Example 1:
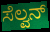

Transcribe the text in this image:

ಸೆಲ್ವನ್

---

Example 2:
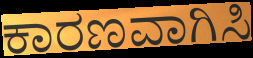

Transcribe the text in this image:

ಕಾರಣವಾಗಿಸಿ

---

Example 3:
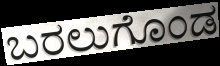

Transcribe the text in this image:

ಬರಲುಗೊಂಡ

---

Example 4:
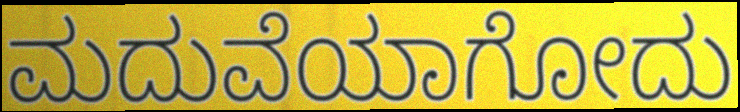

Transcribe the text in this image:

ಮದುವೆಯಾಗೋದು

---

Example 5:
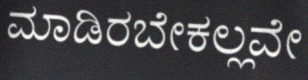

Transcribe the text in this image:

ಮಾಡಿರಬೇಕಲ್ಲವೇ